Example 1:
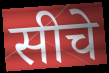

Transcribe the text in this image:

सीचे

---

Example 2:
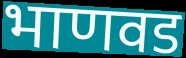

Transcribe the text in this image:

भाणवड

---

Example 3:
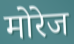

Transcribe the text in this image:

मोरेज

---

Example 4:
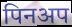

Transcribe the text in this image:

पिनअप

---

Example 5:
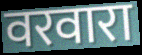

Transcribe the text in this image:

वरवारा